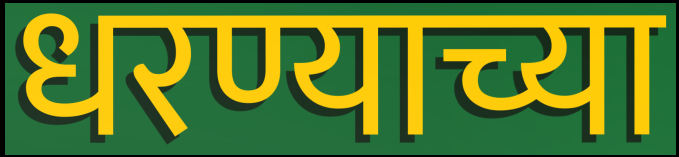
धरण्याच्या